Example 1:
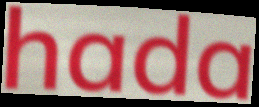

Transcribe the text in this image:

hada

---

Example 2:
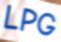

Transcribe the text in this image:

LPG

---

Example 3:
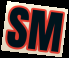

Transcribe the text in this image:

SM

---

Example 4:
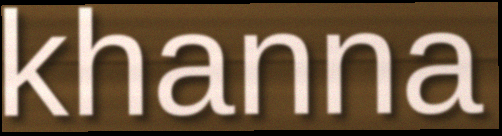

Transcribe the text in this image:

khanna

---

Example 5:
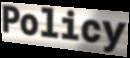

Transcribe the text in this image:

Policy